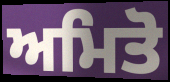
ਅਮਿਤੋ